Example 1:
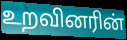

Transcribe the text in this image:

உறவினரின்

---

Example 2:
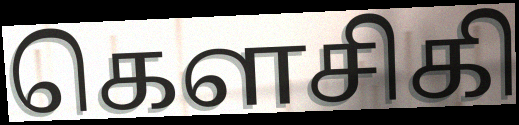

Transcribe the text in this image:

கௌசிகி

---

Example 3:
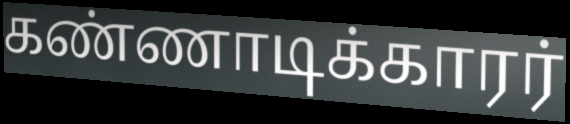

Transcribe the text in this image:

கண்ணாடிக்காரர்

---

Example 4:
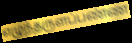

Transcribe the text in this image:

எழுந்தருளப்பண்ண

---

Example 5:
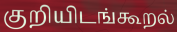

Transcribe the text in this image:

குறியிடங்கூறல்